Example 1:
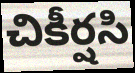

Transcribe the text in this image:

చికీర్షసి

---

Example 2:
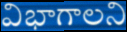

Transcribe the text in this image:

విభాగాలని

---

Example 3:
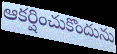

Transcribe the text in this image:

ఆకర్షించుకొందును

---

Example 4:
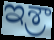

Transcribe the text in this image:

ఇశ్రా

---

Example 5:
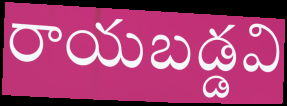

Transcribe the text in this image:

రాయబడ్డవి